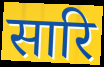
सारि